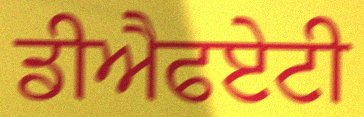
ਡੀਐਫਏਟੀ